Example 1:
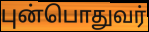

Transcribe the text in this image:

புன்பொதுவர்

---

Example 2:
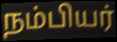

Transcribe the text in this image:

நம்பியர்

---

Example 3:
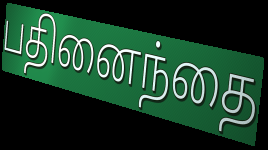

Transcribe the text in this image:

பதினைந்தை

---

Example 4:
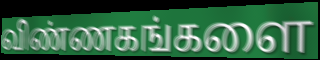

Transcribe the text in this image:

விண்ணகங்களை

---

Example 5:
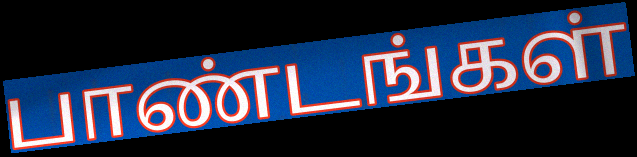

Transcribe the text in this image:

பாண்டங்கள்